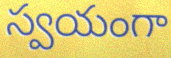
స్వయంగా